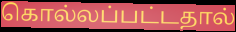
கொல்லப்பட்டதால்